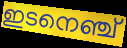
ഇടനെഞ്ച്